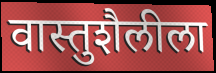
वास्तुशैलीला